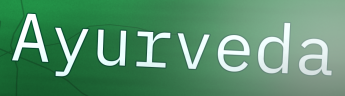
Ayurveda